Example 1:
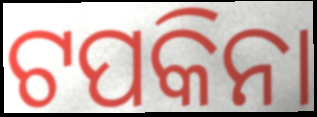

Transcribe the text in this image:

ଟପକିନା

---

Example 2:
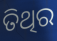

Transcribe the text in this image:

ତିଥିର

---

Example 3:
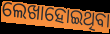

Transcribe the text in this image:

ଲେଖାହୋଇଥିବା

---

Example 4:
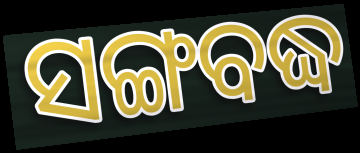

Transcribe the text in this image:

ସଙ୍ଗବଦ୍ଧ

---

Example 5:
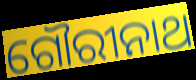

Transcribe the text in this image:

ଗୌରୀନାଥ